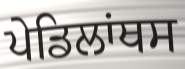
ਪੇਡਿਲਾਂਥਸ